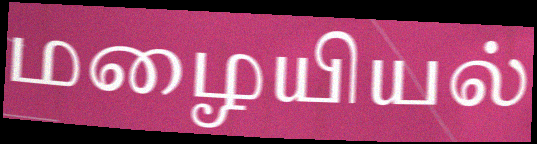
மழையியல்